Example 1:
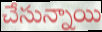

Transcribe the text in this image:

చేసున్నాయి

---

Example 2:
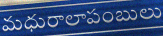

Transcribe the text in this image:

మధురాలాపంబులు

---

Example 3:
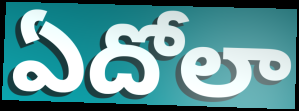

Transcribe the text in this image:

ఏదోలా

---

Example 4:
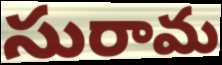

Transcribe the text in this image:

సురామ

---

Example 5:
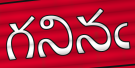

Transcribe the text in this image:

గనినఁ